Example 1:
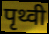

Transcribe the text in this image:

पृथ्वी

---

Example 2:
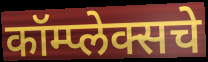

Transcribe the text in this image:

कॉम्प्लेक्सचे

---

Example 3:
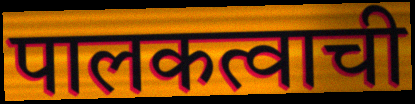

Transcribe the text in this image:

पालकत्वाची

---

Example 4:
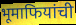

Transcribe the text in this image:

भूमाफियांची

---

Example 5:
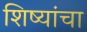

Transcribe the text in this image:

शिष्यांचा